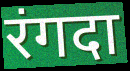
रंगदा